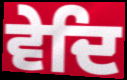
ਵੇਦਿ